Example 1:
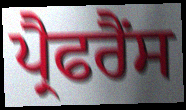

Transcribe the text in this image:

ਪ੍ਰੈਫਰੈਂਸ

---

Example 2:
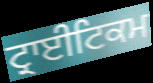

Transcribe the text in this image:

ਟ੍ਰਾਈਟਿਕਮ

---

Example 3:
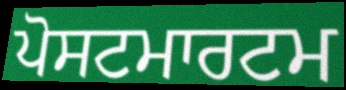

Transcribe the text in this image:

ਪੋਸਟਮਾਰਟਮ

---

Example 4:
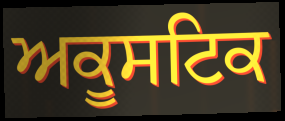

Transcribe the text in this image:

ਅਕੂਸਟਿਕ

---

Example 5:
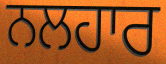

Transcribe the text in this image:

ਨਲਹਾਰ